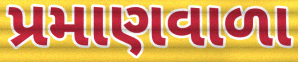
પ્રમાણવાળા